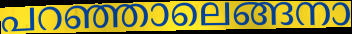
പറഞ്ഞാലെങ്ങനാ